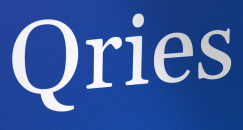
Qries